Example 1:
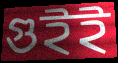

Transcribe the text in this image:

গুইই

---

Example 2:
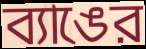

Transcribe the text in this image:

ব্যাঙের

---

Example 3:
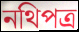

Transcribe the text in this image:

নথিপত্র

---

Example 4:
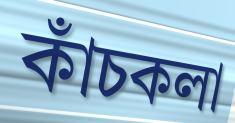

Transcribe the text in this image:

কাঁচকলা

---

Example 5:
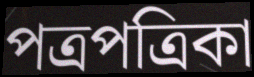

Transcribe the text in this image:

পত্রপত্রিকা